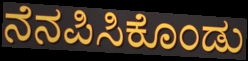
ನೆನಪಿಸಿಕೊಂಡು